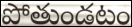
పోతుండటం